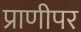
प्राणीपर